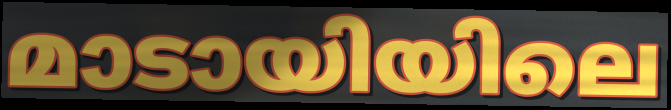
മാടായിയിലെ